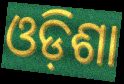
ଓଡ଼ିଶା